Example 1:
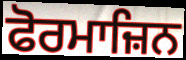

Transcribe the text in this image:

ਫੋਰਮਾਜ਼ਿਨ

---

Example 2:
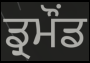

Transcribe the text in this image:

ਡ੍ਰਮੌਂਡ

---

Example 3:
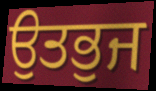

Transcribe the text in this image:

ਉਤਭੁਜ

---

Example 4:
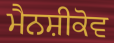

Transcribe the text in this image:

ਮੈਨਸ਼ੀਕੋਵ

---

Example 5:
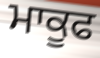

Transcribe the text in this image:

ਮਾਕੂਫ